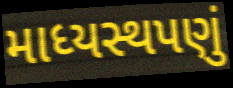
માધ્યસ્થપણું